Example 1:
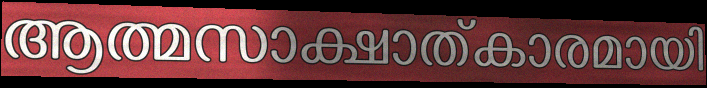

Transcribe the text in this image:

ആത്മസാക്ഷാത്കാരമായി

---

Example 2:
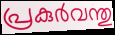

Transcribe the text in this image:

പ്രകുർവന്തു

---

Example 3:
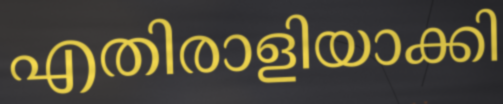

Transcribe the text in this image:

എതിരാളിയാക്കി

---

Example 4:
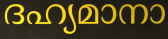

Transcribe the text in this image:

ദഹ്യമാനാ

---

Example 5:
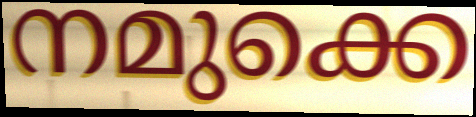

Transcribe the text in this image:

നമുക്കെ